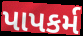
પાપકર્મ